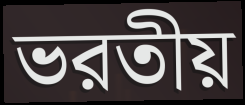
ভরতীয়